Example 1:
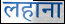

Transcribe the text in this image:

लहाना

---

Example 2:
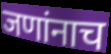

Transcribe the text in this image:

जणांनाच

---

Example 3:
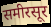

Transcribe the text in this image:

समीरसूर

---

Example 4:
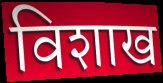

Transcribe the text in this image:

विशाख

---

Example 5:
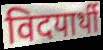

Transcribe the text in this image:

विदयार्थी